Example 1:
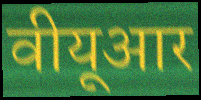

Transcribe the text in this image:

वीयूआर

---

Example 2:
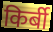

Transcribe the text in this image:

किर्बी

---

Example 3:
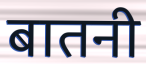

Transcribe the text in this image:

बातनी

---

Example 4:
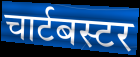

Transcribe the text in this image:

चार्टबस्टर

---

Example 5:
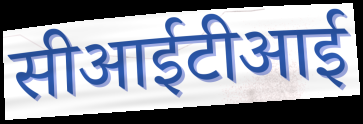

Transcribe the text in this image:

सीआईटीआई